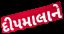
દીપમાલાને